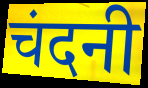
चंदनी